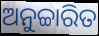
ଅନୁଚ୍ଚାରିତ